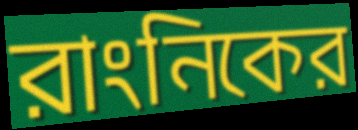
রাংনিকের